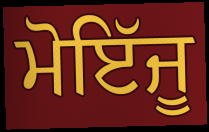
ਮੋਇੱਜੂ